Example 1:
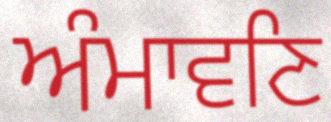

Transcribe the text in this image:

ਅੰਮਾਵਣਿ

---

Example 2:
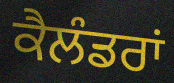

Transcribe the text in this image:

ਕੈਲੰਡਰਾਂ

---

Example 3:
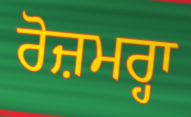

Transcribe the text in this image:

ਰੋਜ਼ਮਰ੍ਹਾ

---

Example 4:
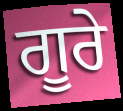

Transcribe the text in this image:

ਗੂਰੇ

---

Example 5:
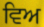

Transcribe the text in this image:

ਵਿਅ